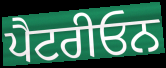
ਪੈਟਰੀਓਨ